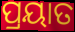
ପ୍ରୟାତ